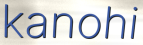
kanohi